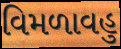
વિમળાવહુ